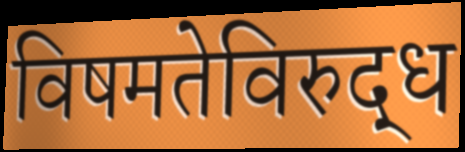
विषमतेविरुद्ध